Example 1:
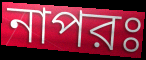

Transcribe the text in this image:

নাপরঃ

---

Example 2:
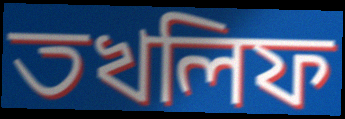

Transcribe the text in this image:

তখলিফ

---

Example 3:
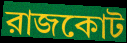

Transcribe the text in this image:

রাজকোট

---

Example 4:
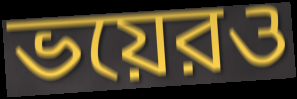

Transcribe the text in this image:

ভয়েরও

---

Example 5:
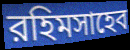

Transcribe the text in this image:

রহিমসাহেব